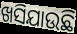
ଖସିଯାଉଛି